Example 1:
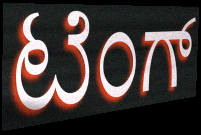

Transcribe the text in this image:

ಟೆಂಗ್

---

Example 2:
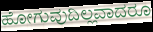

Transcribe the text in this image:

ಹೋಗುವುದಿಲ್ಲವಾದರೂ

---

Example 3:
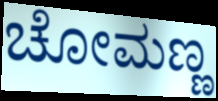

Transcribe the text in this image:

ಚೋಮಣ್ಣ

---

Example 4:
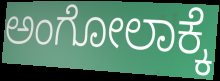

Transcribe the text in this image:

ಅಂಗೋಲಾಕ್ಕೆ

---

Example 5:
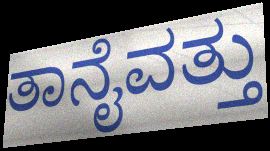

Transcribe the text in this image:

ತಾನೈವತ್ತು